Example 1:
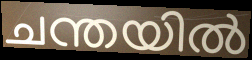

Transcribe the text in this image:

ചന്തയിൽ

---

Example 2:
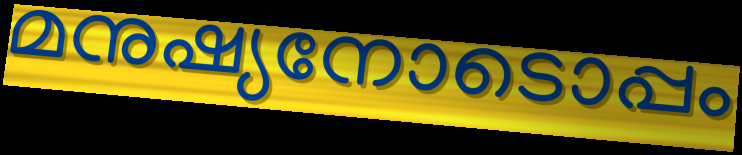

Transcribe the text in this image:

മനുഷ്യനോടൊപ്പം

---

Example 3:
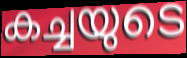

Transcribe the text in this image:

കച്ചയുടെ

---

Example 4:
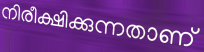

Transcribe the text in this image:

നിരീക്ഷിക്കുന്നതാണ്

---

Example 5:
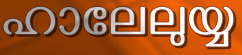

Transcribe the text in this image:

ഹാലേലുയ്യ